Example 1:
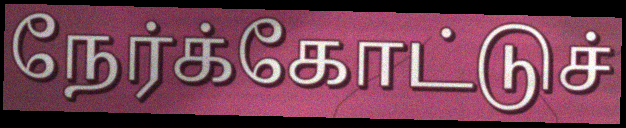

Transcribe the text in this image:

நேர்க்கோட்டுச்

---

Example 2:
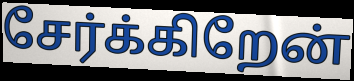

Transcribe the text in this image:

சேர்க்கிறேன்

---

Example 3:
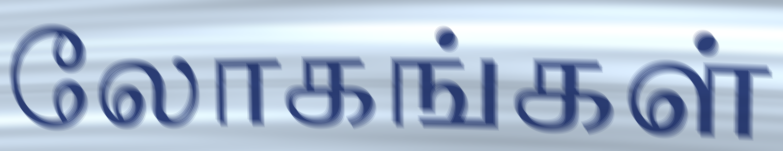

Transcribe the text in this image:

லோகங்கள்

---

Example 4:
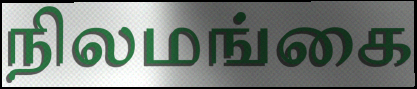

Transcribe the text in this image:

நிலமங்கை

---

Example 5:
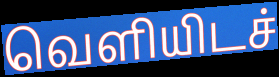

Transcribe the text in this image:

வெளியிடச்